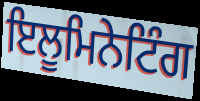
ਇਲੂਮਿਨੇਟਿੰਗ